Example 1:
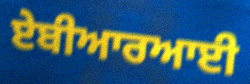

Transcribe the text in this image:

ਏਬੀਆਰਆਈ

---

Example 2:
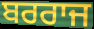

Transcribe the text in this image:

ਬਰਰਾਜ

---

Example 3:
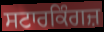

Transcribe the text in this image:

ਸਟਾਰਕਿੰਗਜ਼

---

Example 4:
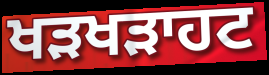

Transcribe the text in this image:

ਖੜਖੜਾਹਟ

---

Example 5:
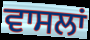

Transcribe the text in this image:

ਵਾਸਲਾਂ